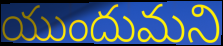
యుందుమని